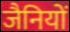
जैनियों